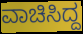
ವಾಚಿಸಿದ್ದ